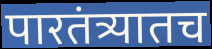
पारतंत्र्यातच